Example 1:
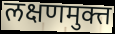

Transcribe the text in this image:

लक्षणमुक्त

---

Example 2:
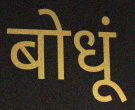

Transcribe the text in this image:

बोधूं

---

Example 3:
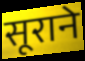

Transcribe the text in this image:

सूराने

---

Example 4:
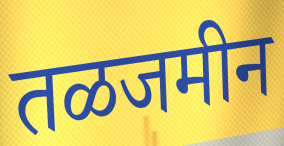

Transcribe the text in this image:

तळजमीन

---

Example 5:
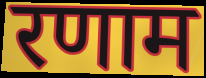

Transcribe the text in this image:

रणाम